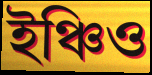
ইঞ্চিও